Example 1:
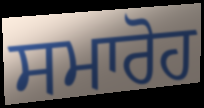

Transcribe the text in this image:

ਸਮਾਰੋਹ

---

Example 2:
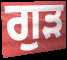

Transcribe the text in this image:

ਗੁੜ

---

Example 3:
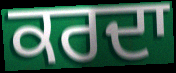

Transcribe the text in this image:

ਕਰਦਾ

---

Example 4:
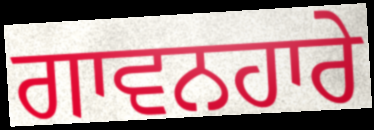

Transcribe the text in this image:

ਗਾਵਨਹਾਰੇ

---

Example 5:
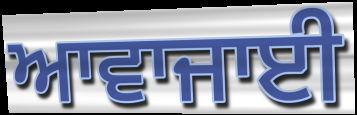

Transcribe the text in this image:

ਆਵਾਜਾਈ